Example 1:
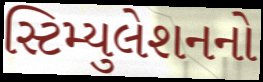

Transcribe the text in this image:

સ્ટિમ્યુલેશનનો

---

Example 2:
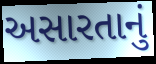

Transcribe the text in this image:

અસારતાનું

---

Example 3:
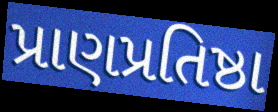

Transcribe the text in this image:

પ્રાણપ્રતિષ્ઠા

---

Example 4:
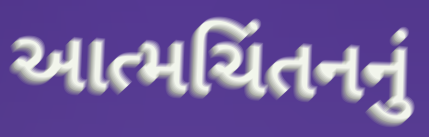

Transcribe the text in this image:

આત્મચિંતનનું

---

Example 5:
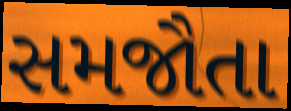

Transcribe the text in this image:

સમજૌતા